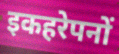
इकहरेपनों